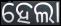
ହେଲା